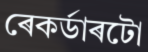
ৰেকৰ্ডাৰটো